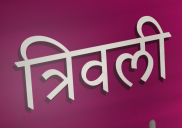
त्रिवली